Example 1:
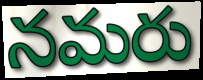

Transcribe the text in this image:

నమరు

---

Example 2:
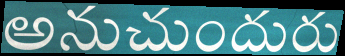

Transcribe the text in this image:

అనుచుందురు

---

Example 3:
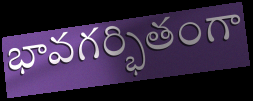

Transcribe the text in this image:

భావగర్భితంగా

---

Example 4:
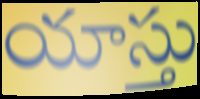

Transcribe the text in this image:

యాస్తు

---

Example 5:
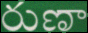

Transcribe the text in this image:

రుణా